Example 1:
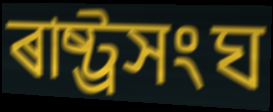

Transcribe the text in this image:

ৰাষ্ট্ৰসংঘ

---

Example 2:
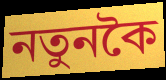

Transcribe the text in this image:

নতুনকৈ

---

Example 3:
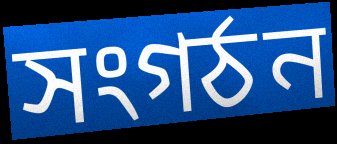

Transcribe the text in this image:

সংগঠন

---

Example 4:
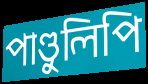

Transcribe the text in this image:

পাণ্ডুলিপি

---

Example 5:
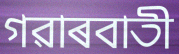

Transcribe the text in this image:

গৱাৰবাতী